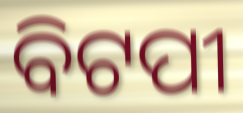
ବିଟପୀ